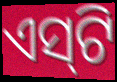
ଏସ୍‌ଟି